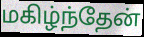
மகிழ்ந்தேன்